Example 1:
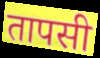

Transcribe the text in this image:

तापसी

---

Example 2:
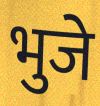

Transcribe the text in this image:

भुजे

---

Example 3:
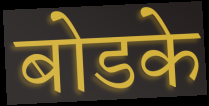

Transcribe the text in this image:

बोडके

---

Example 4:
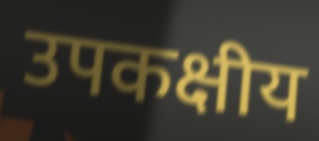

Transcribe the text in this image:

उपकक्षीय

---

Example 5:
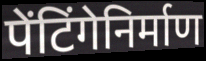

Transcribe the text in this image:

पेंटिंगेनिर्माण